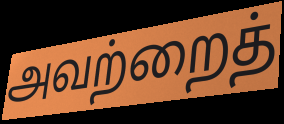
அவற்றைத்